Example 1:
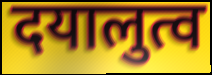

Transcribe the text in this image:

दयालुत्व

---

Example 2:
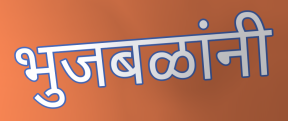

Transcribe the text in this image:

भुजबळांनी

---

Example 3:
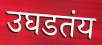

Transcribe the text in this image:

उघडतंय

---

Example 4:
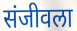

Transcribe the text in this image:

संजीवला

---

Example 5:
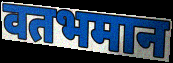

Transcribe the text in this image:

वतभमान